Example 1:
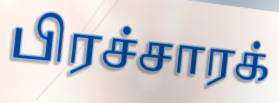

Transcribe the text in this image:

பிரச்சாரக்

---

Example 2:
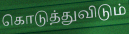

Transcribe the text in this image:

கொடுத்துவிடும்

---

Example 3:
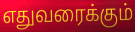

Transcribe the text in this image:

எதுவரைக்கும்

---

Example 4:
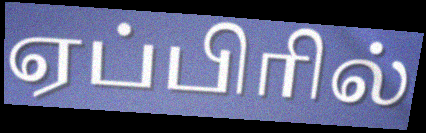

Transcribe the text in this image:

ஏப்பிரில்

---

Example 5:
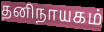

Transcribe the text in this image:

தனிநாயகம்